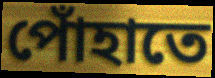
পোঁহাতে